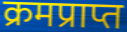
क्रमप्राप्त